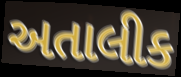
અતાલીક